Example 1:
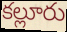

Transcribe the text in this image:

కల్లూరు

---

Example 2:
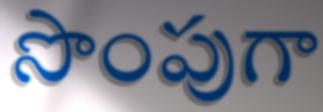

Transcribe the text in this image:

సొంపుగా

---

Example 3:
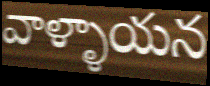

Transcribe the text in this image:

వాళ్ళాయన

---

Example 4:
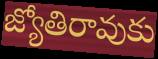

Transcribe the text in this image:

జ్యోతిరావుకు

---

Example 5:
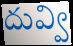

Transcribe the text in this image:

దువ్వి